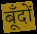
बूँदों